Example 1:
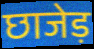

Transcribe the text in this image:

छाजेड़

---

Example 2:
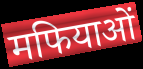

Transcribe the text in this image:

मफियाओं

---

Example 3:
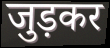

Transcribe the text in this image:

जुड़कर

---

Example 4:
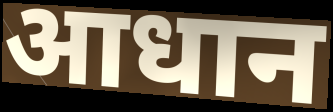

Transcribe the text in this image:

आधान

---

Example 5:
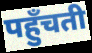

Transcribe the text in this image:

पहुँचती